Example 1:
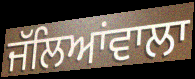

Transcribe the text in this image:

ਜੱਲਿਆਂਵਾਲਾ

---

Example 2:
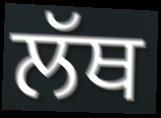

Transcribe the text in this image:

ਲੱਥ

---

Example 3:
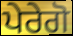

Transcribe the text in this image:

ਪੇਰੇਗੋ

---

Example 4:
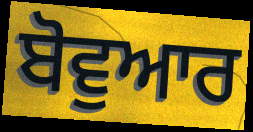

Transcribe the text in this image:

ਬੋਵੁਆਰ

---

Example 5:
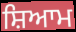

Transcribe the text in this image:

ਸ਼ਿਆਮ